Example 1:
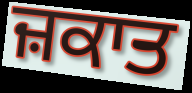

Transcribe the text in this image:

ਜ਼ਕਾਤ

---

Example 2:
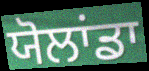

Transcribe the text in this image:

ਯੋਲਾਂਡਾ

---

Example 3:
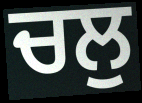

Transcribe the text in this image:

ਚਲੁ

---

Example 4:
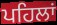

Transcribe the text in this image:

ਪਹਿਲਾਂ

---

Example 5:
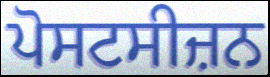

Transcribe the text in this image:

ਪੋਸਟਸੀਜ਼ਨ